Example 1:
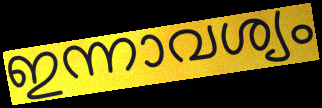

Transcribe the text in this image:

ഇന്നാവശ്യം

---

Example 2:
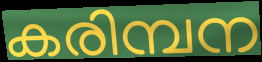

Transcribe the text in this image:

കരിമ്പന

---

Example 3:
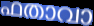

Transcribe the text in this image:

ഫതാവാ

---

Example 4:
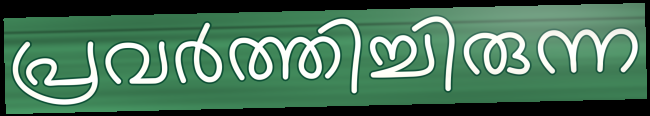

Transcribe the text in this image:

പ്രവർത്തിച്ചിരുന്ന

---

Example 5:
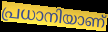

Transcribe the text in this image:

പ്രധാനിയാണ്